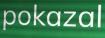
pokazal